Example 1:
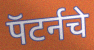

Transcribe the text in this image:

पॅटर्नचे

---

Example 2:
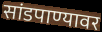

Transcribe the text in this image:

सांडपाण्यावर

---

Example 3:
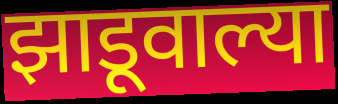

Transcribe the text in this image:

झाडूवाल्या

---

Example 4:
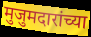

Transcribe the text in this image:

मुजुमदारांच्या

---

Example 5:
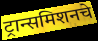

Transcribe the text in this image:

ट्रान्समिशनचे